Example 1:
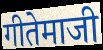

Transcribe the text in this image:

गीतेमाजी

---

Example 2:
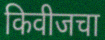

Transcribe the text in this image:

किवीजचा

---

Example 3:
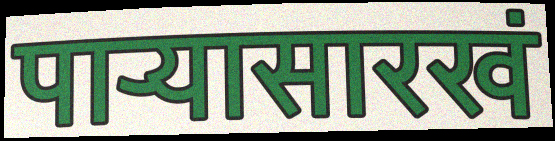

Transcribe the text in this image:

पाऱ्यासारखं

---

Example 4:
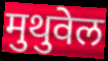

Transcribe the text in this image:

मुथुवेल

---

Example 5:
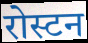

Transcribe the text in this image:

रोस्टन